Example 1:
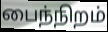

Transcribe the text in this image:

பைந்நிறம்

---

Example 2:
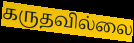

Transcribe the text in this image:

கருதவில்லை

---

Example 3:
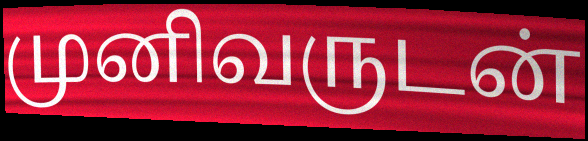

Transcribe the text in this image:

முனிவருடன்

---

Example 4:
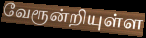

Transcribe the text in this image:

வேரூன்றியுள்ள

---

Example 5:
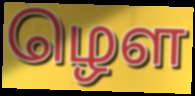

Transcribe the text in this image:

ழௌ